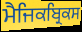
ਮੈਜਿਕਬ੍ਰਿਕਸ